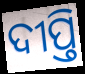
ଦୀପ୍ତି